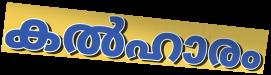
കൽഹാരം